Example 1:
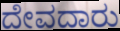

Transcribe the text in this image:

ದೇವದಾರು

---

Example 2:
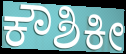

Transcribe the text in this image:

ಕೌಶಿಕೀ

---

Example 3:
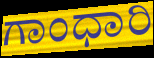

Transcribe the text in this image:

ಗಾಂಧಾರಿ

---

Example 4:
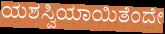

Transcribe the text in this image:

ಯಶಸ್ವಿಯಾಯಿತೆಂದೇ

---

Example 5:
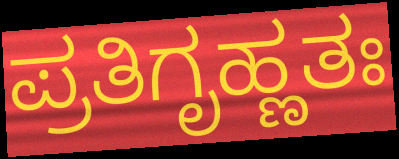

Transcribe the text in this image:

ಪ್ರತಿಗೃಹ್ಣತಃ